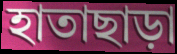
হাতাছাড়া